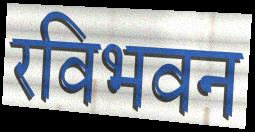
रविभवन